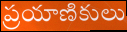
ప్రయాణికులు